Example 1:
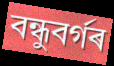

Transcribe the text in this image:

বন্ধুবৰ্গৰ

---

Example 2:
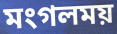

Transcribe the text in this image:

মংগলময়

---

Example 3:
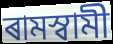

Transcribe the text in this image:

ৰামস্বামী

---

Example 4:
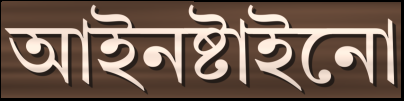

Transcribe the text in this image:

আইনষ্টাইনো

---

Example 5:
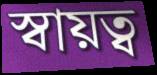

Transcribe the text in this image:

স্বায়ত্ব